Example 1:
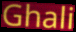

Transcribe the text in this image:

Ghali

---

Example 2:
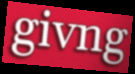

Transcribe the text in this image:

givng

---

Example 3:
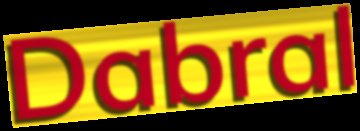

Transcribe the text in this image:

Dabral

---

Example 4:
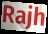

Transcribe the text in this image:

Rajh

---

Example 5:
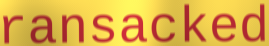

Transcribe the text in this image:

ransacked